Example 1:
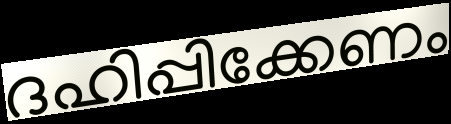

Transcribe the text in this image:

ദഹിപ്പിക്കേണം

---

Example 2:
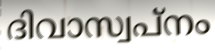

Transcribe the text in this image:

ദിവാസ്വപ്നം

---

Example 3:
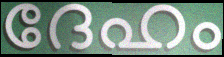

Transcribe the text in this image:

ദേഹം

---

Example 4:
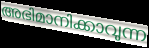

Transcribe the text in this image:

അഭിമാനിക്കാവുന്ന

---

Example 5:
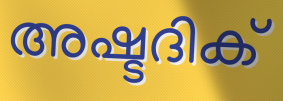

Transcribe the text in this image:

അഷ്ടദിക്